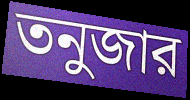
তনুজার